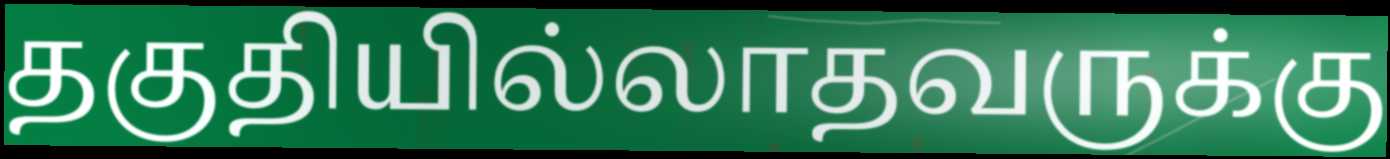
தகுதியில்லாதவருக்கு